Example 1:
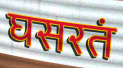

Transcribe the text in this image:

घसरतं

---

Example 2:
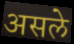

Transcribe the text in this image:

असले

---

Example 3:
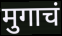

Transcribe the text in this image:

मुगाचं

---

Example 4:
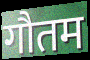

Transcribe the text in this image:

गौतम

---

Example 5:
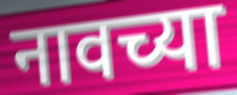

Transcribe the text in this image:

नावच्या